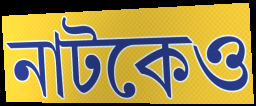
নাটকেও